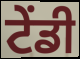
ਟੇਂਡੀ